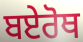
ਬਏਰੋਥ